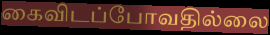
கைவிடப்போவதில்லை